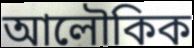
আলৌকিক